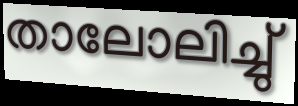
താലോലിച്ചു്